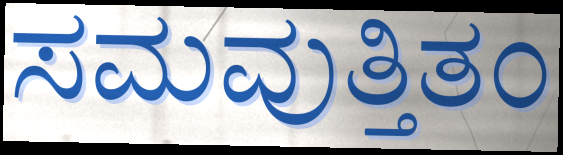
ಸಮವುತ್ತಿತಂ